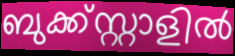
ബുക്ക്സ്റ്റാളിൽ